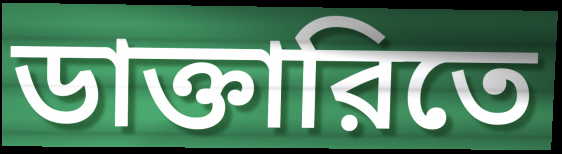
ডাক্তারিতে